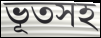
ভূতসহ